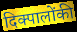
दिक्पालोंकी